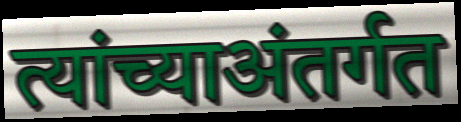
त्यांच्याअंतर्गत